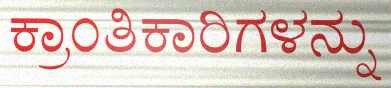
ಕ್ರಾಂತಿಕಾರಿಗಳನ್ನು